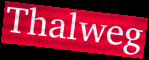
Thalweg